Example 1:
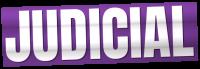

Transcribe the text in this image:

JUDICIAL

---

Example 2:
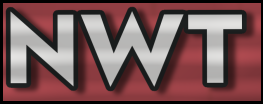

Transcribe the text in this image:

NWT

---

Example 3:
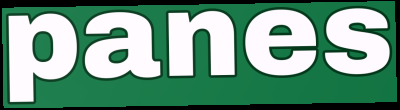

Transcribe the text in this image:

panes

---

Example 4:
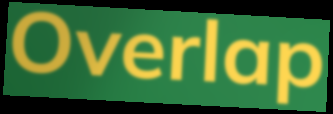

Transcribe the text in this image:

Overlap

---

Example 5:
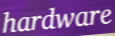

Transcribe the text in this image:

hardware